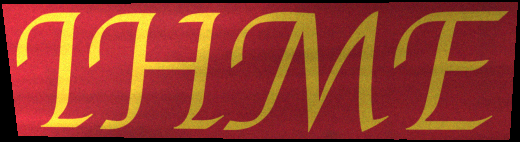
IHME